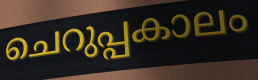
ചെറുപ്പകാലം